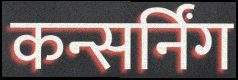
कन्सर्निंग